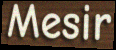
Mesir